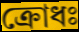
ক্রোধঃ